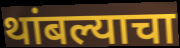
थांबल्याचा